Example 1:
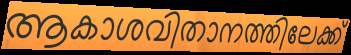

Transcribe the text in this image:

ആകാശവിതാനത്തിലേക്ക്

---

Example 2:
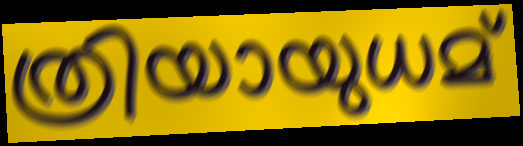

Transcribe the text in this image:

ത്രിയായുധമ്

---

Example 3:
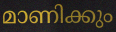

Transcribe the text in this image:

മാണിക്കും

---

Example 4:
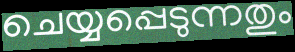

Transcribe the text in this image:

ചെയ്യപ്പെടുന്നതും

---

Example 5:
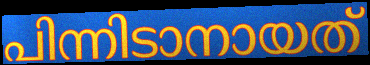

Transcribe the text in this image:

പിന്നിടാനായത്